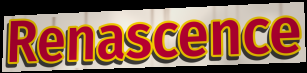
Renascence